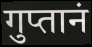
गुप्तानं